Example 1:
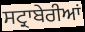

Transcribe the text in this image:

ਸਟ੍ਰਾਬੇਰੀਆਂ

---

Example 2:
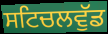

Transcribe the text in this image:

ਸਟਿਚਲਵੁੱਡ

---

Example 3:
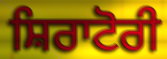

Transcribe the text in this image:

ਸ਼ਿਰਾਟੋਰੀ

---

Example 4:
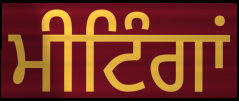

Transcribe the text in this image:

ਮੀਟਿੰਗਾਂ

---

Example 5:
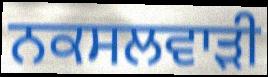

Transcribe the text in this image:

ਨਕਸਲਵਾੜੀ